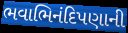
ભવાભિનંદિપણાની